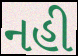
નહી